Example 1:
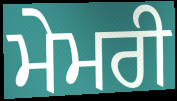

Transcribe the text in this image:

ਮੇਮਰੀ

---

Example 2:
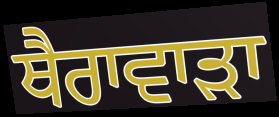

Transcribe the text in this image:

ਥੈਰਾਵਾੜਾ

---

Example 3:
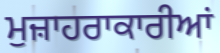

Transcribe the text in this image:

ਮੁਜ਼ਾਹਰਾਕਾਰੀਆਂ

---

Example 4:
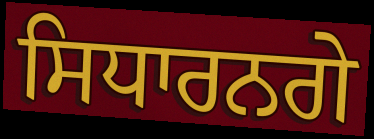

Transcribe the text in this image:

ਸਿਧਾਰਨਗੇ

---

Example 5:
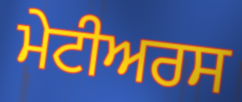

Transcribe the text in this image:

ਮੇਟੀਅਰਸ